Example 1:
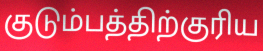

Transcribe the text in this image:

குடும்பத்திற்குரிய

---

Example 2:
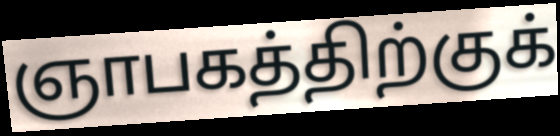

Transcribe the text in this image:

ஞாபகத்திற்குக்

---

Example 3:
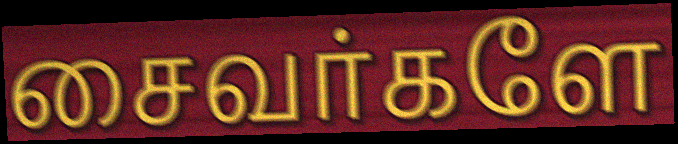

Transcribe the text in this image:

சைவர்களே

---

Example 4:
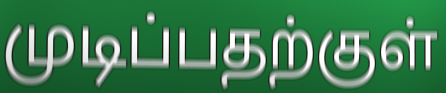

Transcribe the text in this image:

முடிப்பதற்குள்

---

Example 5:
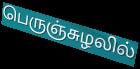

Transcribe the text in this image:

பெருஞ்சுழலில்